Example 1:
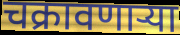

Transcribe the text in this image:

चक्रावणाऱ्या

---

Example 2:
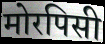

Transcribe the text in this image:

मोरपिसी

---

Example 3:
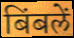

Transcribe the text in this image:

बिंबलें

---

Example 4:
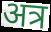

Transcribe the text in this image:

अत्र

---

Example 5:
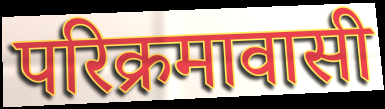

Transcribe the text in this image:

परिक्रमावासी